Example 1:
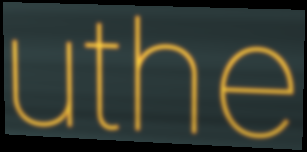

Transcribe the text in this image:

uthe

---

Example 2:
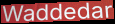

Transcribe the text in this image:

Waddedar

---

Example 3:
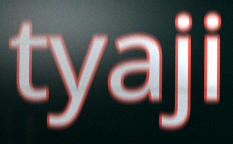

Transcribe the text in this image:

tyaji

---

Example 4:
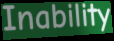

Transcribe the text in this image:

Inability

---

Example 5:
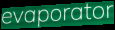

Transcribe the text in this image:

evaporator